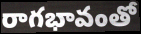
రాగభావంతో